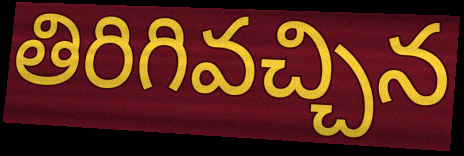
తిరిగివచ్చిన